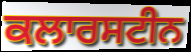
ਕਲਾਰਸਟੀਨ